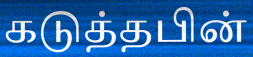
கடுத்தபின்